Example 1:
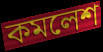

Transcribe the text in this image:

কমলেশ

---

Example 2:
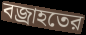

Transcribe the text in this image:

বজ্রাহতের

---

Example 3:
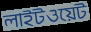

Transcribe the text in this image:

লাইটওয়েট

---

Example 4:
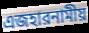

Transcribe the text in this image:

এজহারনামীয়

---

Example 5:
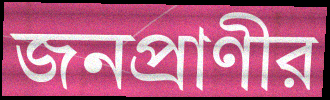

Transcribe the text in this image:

জনপ্রাণীর